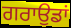
ਗਰਾਉਡਾਂ